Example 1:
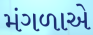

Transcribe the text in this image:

મંગળાએ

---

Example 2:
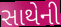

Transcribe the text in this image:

સાથેની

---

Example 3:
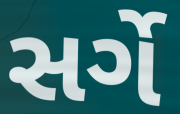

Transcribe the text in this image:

સર્ગે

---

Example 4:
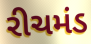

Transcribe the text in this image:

રીચમંડ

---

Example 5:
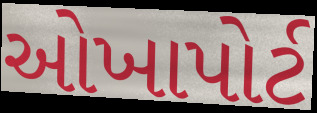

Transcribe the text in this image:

ઓખાપોર્ટ